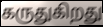
கருதுகிறது